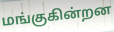
மங்குகின்றன